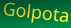
Golpota